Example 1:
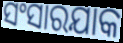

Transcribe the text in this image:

ସଂସାରଯାକ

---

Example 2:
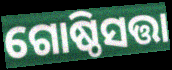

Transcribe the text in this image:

ଗୋଷ୍ଠିସତ୍ତା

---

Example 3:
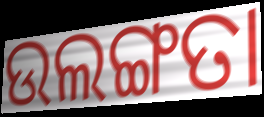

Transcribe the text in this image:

ଉଲଙ୍ଗତା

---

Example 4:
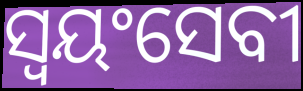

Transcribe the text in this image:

ସ୍ୱୟଂସେବୀ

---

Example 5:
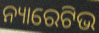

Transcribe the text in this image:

ନ୍ୟାରେଟିଭ